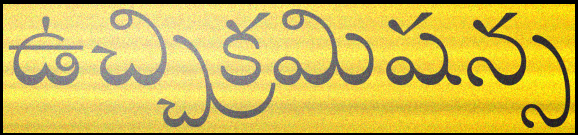
ఉచ్చిక్రమిషన్స